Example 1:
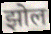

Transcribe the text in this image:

झोल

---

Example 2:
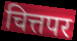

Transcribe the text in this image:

चित्तपर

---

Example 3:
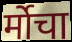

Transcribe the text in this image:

र्मोचा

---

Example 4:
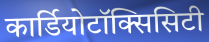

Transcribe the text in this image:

कार्डियोटॉक्सिसिटी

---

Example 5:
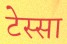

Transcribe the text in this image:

टेस्सा